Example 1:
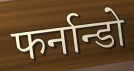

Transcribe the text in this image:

फर्नान्डो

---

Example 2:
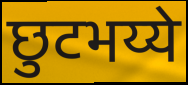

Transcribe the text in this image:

छुटभय्ये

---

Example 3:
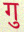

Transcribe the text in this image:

गु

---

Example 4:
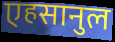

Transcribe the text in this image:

एहसानुल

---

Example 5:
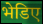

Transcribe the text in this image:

भेडिए